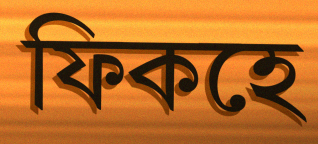
ফিকহে